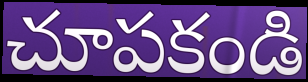
చూపకండి